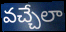
వచ్చేలా